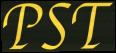
PST